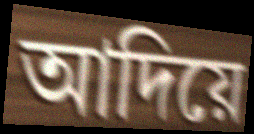
আদিয়ে